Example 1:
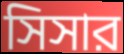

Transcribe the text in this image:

সিসার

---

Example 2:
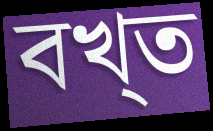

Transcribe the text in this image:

বখ্ত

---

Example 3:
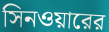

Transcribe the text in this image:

সিনওয়ারের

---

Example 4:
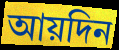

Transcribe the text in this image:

আয়দিন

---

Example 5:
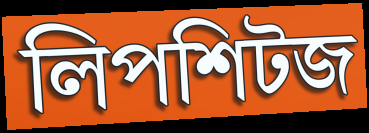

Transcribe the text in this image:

লিপশিটজ